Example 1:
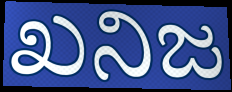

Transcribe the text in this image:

ಖನಿಜ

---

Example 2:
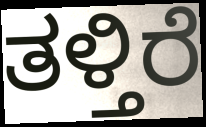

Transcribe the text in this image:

ತಳ್ತಿರೆ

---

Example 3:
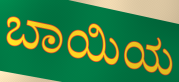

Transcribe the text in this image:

ಬಾಯಿಯ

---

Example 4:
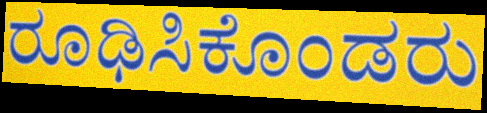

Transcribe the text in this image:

ರೂಢಿಸಿಕೊಂಡರು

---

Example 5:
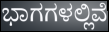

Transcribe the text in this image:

ಭಾಗಗಳಲ್ಲಿವೆ